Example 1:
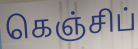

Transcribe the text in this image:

கெஞ்சிப்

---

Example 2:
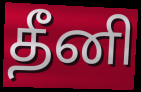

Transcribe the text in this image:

தீனி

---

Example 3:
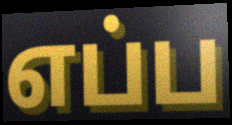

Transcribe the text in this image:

எப்ப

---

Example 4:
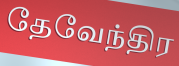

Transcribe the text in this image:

தேவேந்திர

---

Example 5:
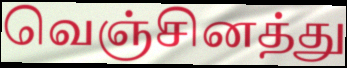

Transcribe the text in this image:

வெஞ்சினத்து